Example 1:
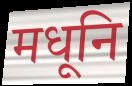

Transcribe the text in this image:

मधूनि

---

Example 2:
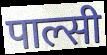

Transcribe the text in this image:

पाल्सी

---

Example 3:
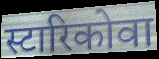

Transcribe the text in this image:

स्टारिकोवा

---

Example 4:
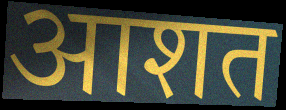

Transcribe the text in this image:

आशत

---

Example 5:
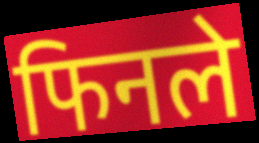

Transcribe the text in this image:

फिनले